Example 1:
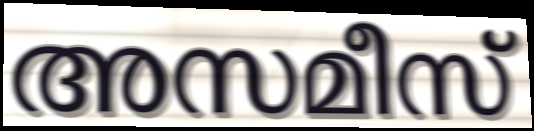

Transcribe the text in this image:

അസമീസ്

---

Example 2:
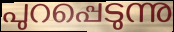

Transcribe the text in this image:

പുറപ്പെടുന്നു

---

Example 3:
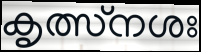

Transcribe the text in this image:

കൃത്സ്നശഃ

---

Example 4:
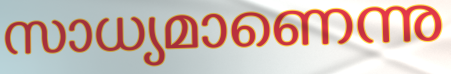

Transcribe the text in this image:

സാധ്യമാണെന്നു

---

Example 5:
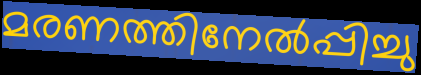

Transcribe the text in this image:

മരണത്തിനേൽപ്പിച്ചു